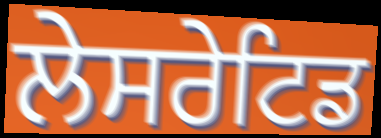
ਲੇਸਰੇਟਿਡ